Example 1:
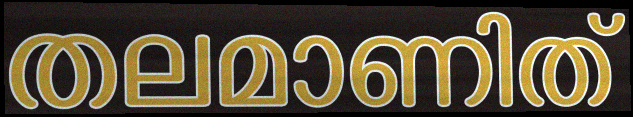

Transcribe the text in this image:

തലമാണിത്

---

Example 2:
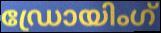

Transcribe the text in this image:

ഡ്രോയിംഗ്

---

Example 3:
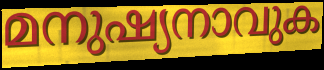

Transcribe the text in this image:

മനുഷ്യനാവുക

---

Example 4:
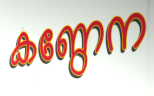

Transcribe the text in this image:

കണ്ഠേന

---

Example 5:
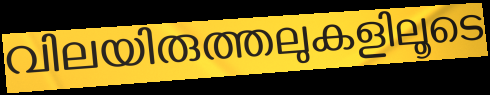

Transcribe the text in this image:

വിലയിരുത്തലുകളിലൂടെ